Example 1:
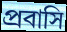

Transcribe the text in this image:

প্রবাসি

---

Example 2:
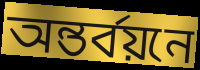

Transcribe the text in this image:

অন্তর্বয়নে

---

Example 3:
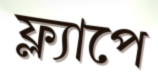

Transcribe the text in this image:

ফ্ল্যাপে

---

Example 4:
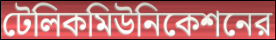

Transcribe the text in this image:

টেলিকমিউনিকেশনের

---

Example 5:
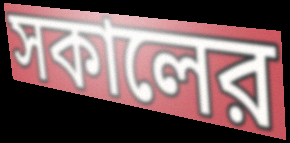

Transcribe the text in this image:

সকালের